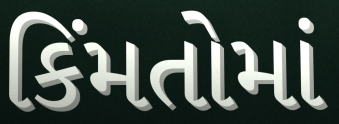
કિંમતોમાં